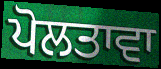
ਪੋਲਤਾਵਾ